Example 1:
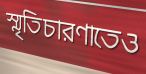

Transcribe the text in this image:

স্মৃতিচারণাতেও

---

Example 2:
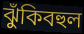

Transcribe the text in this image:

ঝুঁকিবহুল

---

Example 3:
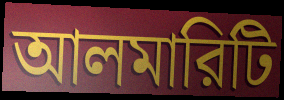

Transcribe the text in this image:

আলমারিটি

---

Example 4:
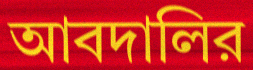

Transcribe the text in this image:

আবদালির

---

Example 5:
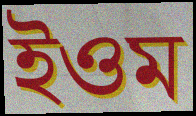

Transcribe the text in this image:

ইওম